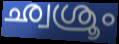
ഛ്വശ്രൂം